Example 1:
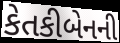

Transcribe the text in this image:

કેતકીબેનની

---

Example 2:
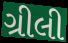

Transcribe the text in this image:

ગ્રીલી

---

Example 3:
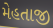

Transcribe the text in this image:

મેહતાજી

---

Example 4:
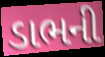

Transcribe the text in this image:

ડાભની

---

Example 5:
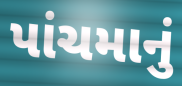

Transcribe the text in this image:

પાંચમાનું